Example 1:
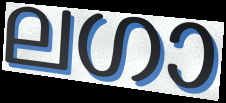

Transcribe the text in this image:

ലഗാ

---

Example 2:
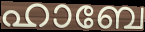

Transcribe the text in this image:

ഹാബേ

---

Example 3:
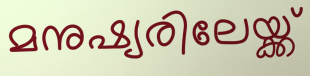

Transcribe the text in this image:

മനുഷ്യരിലേയ്ക്ക്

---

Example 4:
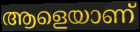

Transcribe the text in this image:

ആളെയാണ്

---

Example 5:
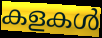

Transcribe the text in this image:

കളകൾ